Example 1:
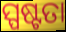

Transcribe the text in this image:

ସ୍ପଷ୍ଟତା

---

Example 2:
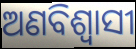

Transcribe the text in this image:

ଅଣବିଶ୍ୱାସୀ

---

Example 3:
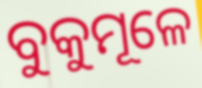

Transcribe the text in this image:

ବୁକୁମୂଳେ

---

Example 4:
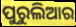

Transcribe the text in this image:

ପୁରୁଲିଆର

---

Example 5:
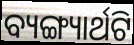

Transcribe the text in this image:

ବ୍ୟଙ୍ଗ୍ୟାର୍ଥଟି